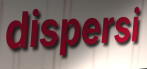
dispersi